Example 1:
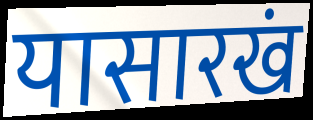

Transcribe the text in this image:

यासारखं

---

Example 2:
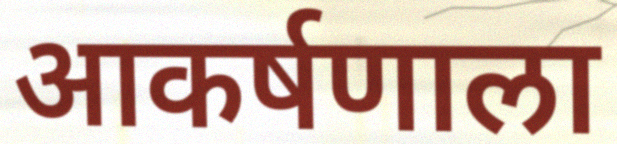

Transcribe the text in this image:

आकर्षणाला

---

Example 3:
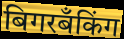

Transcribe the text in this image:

बिगरबँकिंग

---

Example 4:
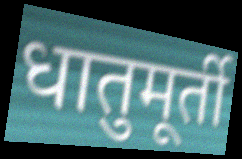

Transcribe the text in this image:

धातुमूर्ती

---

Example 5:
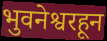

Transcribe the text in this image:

भुवनेश्वरहून